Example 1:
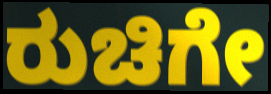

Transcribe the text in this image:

ರುಚಿಗೇ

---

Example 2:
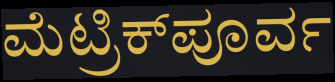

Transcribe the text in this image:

ಮೆಟ್ರಿಕ್‌ಪೂರ್ವ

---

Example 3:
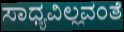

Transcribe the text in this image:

ಸಾಧ್ಯವಿಲ್ಲವಂತೆ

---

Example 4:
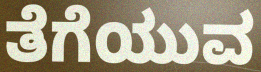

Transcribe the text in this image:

ತೆಗೆಯುವ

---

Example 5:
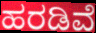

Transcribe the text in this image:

ಹರಡಿವೆ